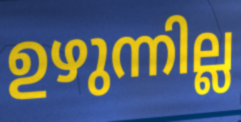
ഉഴുന്നില്ല